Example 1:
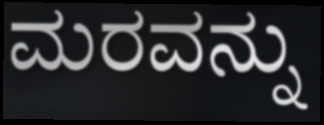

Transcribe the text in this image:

ಮರವನ್ನು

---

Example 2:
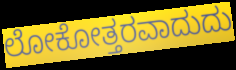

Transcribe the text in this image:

ಲೋಕೋತ್ತರವಾದುದು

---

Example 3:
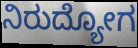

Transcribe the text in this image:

ನಿರುದ್ಯೋಗ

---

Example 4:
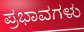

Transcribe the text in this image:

ಪ್ರಭಾವಗಳು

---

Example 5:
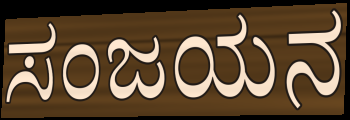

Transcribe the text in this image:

ಸಂಜಯನ